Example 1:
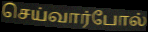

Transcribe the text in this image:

செய்வார்போல்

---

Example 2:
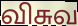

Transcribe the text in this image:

விசுவ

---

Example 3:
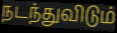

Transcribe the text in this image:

நடந்துவிடும்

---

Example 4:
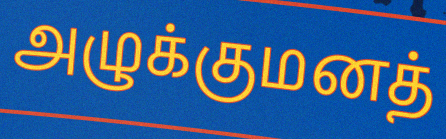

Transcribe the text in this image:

அழுக்குமனத்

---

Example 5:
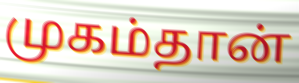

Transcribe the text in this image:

முகம்தான்